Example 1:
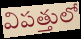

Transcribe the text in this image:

విపత్తులో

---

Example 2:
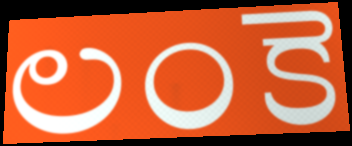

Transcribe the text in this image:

లంకె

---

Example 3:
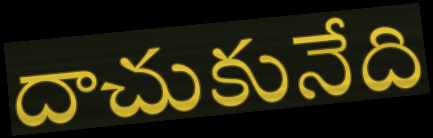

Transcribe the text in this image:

దాచుకునేది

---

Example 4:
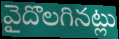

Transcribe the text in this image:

వైదొలగినట్లు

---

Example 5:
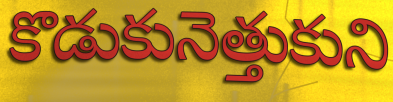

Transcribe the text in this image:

కొడుకునెత్తుకుని